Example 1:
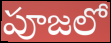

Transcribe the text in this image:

పూజలో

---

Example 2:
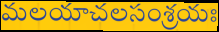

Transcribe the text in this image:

మలయాచలసంశ్రయః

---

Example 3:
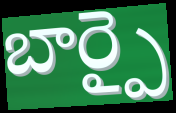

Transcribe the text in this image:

బార్పై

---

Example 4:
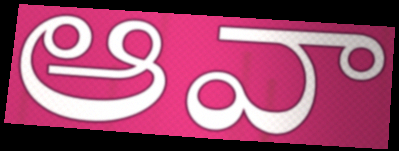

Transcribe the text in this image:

ఆవా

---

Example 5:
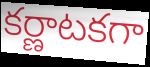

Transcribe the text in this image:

కర్ణాటకగా